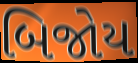
બિજોય